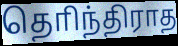
தெரிந்திராத